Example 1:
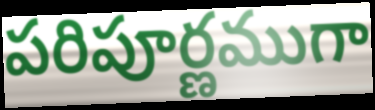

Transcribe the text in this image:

పరిపూర్ణముగా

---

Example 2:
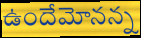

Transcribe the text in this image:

ఉందేమోనన్న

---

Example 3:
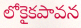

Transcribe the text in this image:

లోకైకపావన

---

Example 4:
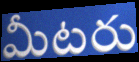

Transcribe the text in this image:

మీటరు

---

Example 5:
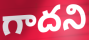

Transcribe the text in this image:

గాదని